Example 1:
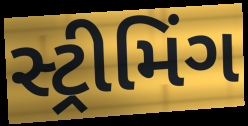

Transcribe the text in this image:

સ્ટ્રીમિંગ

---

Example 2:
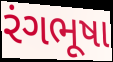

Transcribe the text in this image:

રંગભૂષા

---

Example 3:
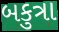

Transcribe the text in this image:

બકુત્રા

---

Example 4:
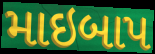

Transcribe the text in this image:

માઇબાપ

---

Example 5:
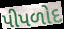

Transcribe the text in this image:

પીપળોદ